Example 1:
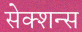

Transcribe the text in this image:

सेक्शन्स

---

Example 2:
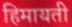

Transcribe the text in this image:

हिमायती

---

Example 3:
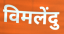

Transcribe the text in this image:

विमलेंदु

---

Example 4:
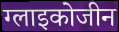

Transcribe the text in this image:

ग्लाइकोजीन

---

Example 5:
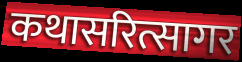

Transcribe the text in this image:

कथासरित्सागर